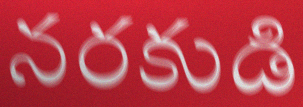
నరకుడి